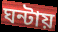
ঘন্টায়